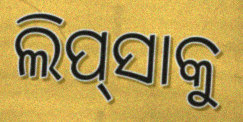
ଲିପ୍‍ସାକୁ